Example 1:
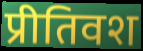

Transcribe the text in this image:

प्रीतिवश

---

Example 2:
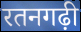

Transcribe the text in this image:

रतनगढ़ी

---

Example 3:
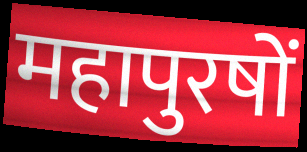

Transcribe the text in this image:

महापुरषों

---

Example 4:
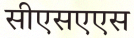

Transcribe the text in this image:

सीएसएएस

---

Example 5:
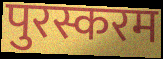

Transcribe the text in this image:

पुरस्करम